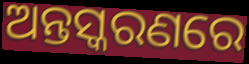
ଅନ୍ତସ୍କରଣରେ